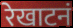
रेखाटनं